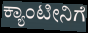
ಕ್ಯಾಂಟೀನಿಗೆ